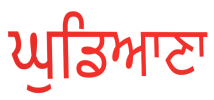
ਘੁਡਿਆਣਾ